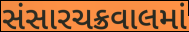
સંસારચક્રવાલમાં